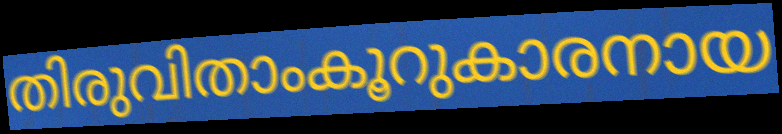
തിരുവിതാംകൂറുകാരനായ